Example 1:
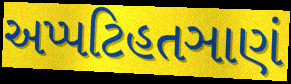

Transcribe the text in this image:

અપ્પટિહતઞાણં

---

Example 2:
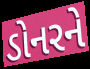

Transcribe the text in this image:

ડોનરને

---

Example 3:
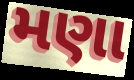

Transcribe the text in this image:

મણા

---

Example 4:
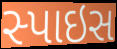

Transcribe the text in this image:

સ્પાઇસ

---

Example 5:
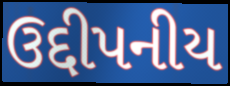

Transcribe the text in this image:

ઉદ્દીપનીય